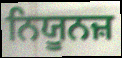
ਨਿਯੂਨਜ਼